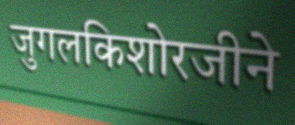
जुगलकिशोरजीने